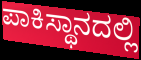
ಪಾಕಿಸ್ಥಾನದಲ್ಲಿ